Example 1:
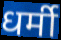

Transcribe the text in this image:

धर्मी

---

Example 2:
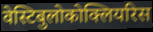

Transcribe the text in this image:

वेस्टिबुलोकोक्लियरिस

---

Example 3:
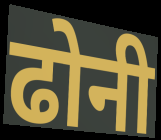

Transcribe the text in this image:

ढोनी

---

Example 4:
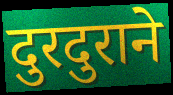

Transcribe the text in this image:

दुरदुराने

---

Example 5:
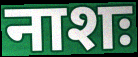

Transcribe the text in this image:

नाशः